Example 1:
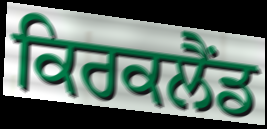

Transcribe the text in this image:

ਕਿਰਕਲੈਂਡ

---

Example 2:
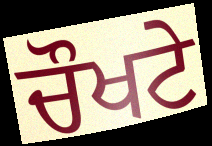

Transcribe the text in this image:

ਚੌਖਟੇ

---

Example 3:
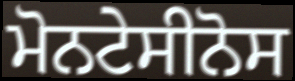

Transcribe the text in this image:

ਮੋਨਟੇਸੀਨੋਸ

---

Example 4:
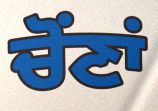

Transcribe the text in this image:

ਚੋਂਣਾਂ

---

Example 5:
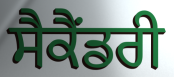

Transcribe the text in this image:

ਸੈਕੈਂਡਰੀ